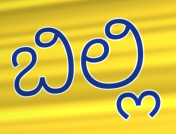
ಬಿಲ್ಲಿ